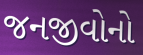
જનજીવોનો